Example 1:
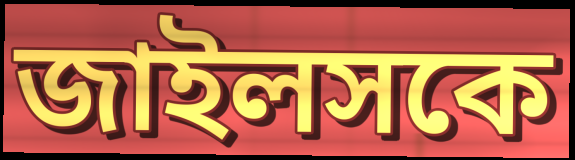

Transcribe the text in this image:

জাইলসকে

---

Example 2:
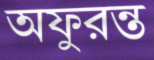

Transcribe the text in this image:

অফুরন্ত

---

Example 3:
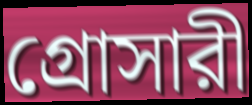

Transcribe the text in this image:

গ্রোসারী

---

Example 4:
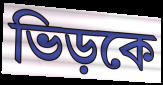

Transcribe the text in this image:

ভিড়কে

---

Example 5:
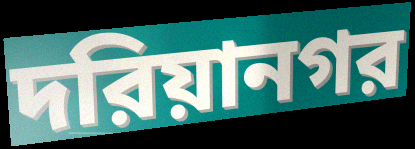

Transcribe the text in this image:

দরিয়ানগর